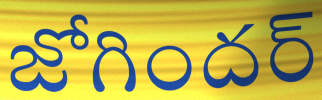
జోగిందర్